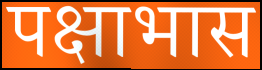
पक्षाभास